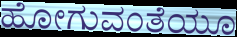
ಹೋಗುವಂತೆಯೂ